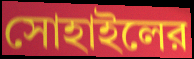
সোহাইলের